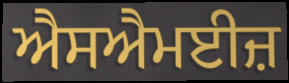
ਐਸਐਮਈਜ਼